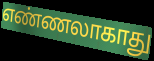
எண்ணலாகாது